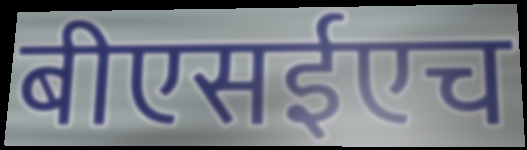
बीएसईएच